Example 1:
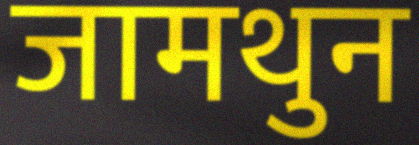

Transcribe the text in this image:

जामथुन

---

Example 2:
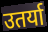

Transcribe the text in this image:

उतर्या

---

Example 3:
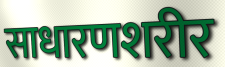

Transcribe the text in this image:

साधारणशरीर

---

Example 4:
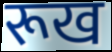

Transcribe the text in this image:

रूख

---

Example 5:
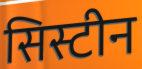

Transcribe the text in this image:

सिस्टीन